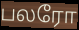
பலரோ